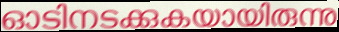
ഓടിനടക്കുകയായിരുന്നു